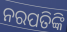
ନରପତିଙ୍କି